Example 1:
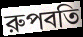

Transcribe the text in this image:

রুপবতি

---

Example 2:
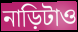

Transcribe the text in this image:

নাড়িটাও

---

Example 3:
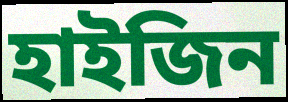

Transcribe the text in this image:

হাইজিন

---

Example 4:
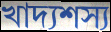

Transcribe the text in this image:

খাদ্যশস্য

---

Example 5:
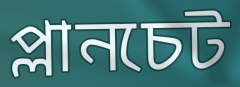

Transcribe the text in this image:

প্লানচেট